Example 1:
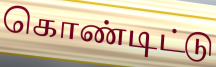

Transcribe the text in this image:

கொண்டிட்டு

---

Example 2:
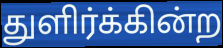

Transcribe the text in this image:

துளிர்க்கின்ற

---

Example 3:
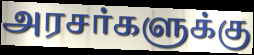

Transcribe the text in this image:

அரசர்களுக்கு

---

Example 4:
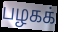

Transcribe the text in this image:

பழகக்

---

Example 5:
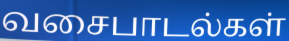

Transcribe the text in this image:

வசைபாடல்கள்